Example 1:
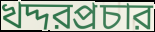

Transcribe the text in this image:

খদ্দরপ্রচার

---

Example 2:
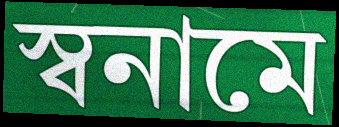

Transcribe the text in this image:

স্বনামে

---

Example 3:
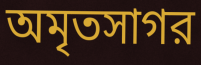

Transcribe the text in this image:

অমৃতসাগর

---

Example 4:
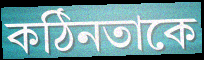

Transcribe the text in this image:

কঠিনতাকে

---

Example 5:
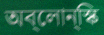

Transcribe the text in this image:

অব্‌লোন্‌স্কি